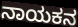
ನಾಯಕನ